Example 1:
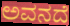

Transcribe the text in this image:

ಅವನದೆ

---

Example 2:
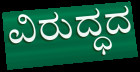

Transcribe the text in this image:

ವಿರುದ್ಧದ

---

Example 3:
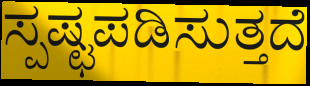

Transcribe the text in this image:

ಸ್ಪಷ್ಟಪಡಿಸುತ್ತದೆ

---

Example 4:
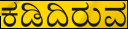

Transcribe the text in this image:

ಕಡಿದಿರುವ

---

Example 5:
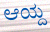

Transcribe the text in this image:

ಆಯ್ದ